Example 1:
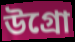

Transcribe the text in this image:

উগ্রো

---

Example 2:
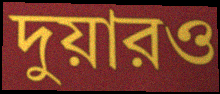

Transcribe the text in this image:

দুয়ারও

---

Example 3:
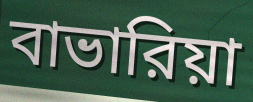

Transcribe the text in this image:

বাভারিয়া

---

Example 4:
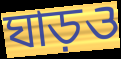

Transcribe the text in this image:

ঘাড়ও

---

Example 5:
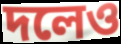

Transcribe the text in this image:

দলেও